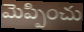
మెప్పించు